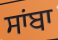
ਸਾਂਬਾ